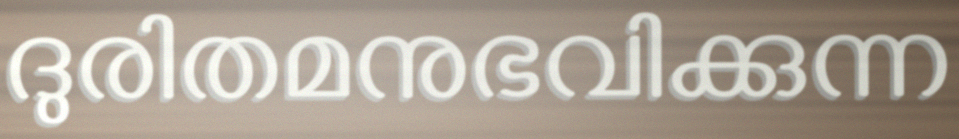
ദുരിതമനുഭവിക്കുന്ന